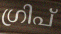
ഗ്രിപ്